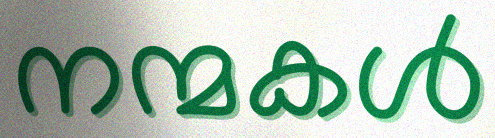
നന്മകൾ